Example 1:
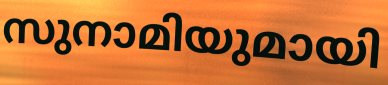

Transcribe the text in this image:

സുനാമിയുമായി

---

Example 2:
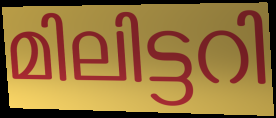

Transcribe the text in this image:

മിലിട്ടറി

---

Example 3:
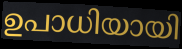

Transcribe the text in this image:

ഉപാധിയായി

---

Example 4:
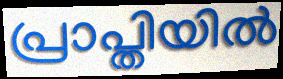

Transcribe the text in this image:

പ്രാപ്തിയിൽ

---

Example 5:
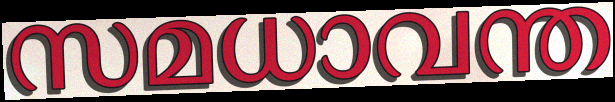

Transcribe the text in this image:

സമധാവന്ത